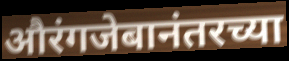
औरंगजेबानंतरच्या